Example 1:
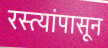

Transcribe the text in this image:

रस्त्यांपासून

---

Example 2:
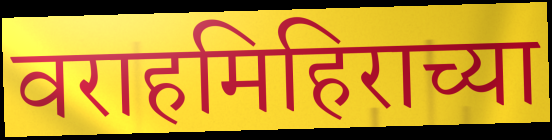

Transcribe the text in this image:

वराहमिहिराच्या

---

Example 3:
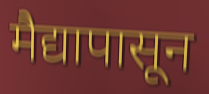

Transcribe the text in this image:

मैद्यापासून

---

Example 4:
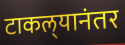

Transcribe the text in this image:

टाकल्यानंतर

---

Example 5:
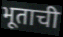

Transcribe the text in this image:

भूताची